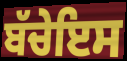
ਬੱਚੇਇਸ